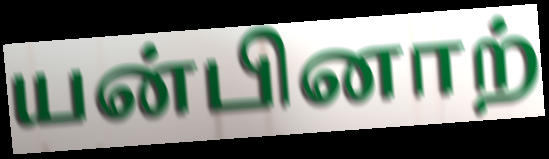
யன்பினாற்